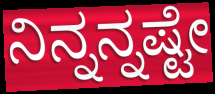
ನಿನ್ನನ್ನಷ್ಟೇ